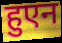
हुएन